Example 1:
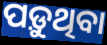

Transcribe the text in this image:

ପଡ଼ୁଥିବା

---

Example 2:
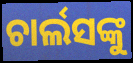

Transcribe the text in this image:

ଚାର୍ଲସଙ୍କୁ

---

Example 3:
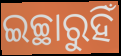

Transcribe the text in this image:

ଇଚ୍ଛାରୁହିଁ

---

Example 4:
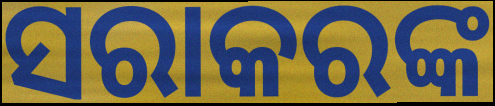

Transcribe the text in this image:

ସରାକରଙ୍କ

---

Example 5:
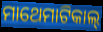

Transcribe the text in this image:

ମାଥେମାଟିକାଲ୍